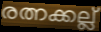
രത്നക്കല്ല്